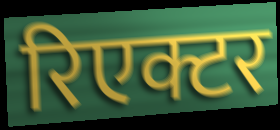
रिएक्टर